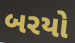
બરયો